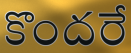
కొందరే